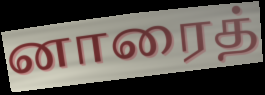
னாரைத்